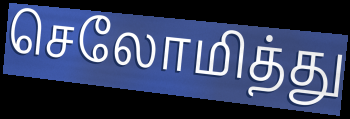
செலோமித்து